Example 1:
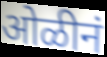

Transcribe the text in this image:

ओळीनं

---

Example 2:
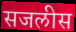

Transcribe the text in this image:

सजलीस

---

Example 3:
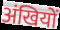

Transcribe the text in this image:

अंखियों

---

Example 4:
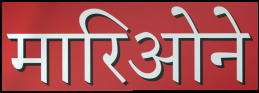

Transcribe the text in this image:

मारिओने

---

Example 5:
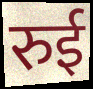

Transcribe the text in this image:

रुई